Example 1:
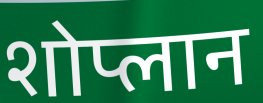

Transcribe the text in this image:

शोप्लान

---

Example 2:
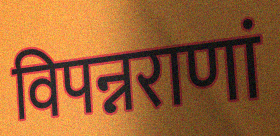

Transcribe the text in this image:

विपन्नराणां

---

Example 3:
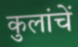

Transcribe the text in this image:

कुलांचें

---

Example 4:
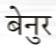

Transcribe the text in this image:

बेनुर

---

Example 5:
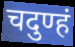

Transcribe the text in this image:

चदुण्हं